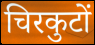
चिरकुटों